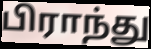
பிராந்து